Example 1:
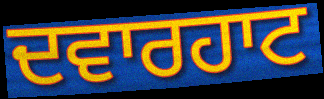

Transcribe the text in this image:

ਦਵਾਰਹਾਟ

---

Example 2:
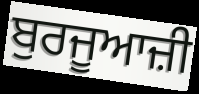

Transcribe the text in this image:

ਬੁਰਜੂਆਜ਼ੀ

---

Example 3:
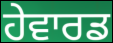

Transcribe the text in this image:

ਹੇਵਾਰਡ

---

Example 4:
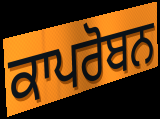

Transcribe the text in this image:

ਕਾਪਰੋਬਨ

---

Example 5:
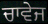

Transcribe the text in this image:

ਚਾਵੇਜ